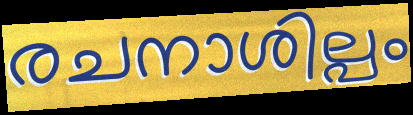
രചനാശില്പം